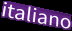
italiano